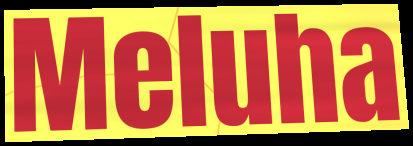
Meluha